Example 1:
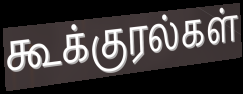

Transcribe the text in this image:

கூக்குரல்கள்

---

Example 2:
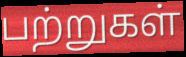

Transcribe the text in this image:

பற்றுகள்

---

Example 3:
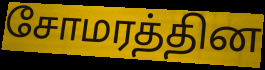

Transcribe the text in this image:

சோமரத்தின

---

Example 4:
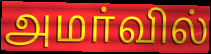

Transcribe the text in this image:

அமர்வில்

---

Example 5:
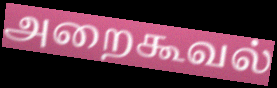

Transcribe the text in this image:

அறைகூவல்